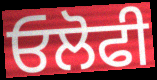
ਓਲੋਫੀ